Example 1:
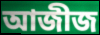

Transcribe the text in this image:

আজীজ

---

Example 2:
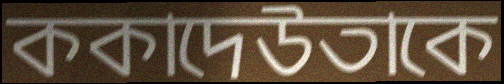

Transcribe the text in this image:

ককাদেউতাকে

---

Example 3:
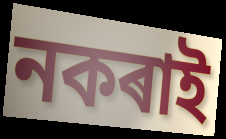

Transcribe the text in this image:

নকৰাই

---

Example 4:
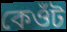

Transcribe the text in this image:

কেওঁট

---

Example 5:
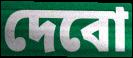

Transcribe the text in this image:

দেবো